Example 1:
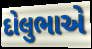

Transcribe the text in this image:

દોલુભાએ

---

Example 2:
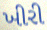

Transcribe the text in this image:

ખીરી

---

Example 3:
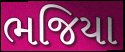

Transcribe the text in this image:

ભજિયા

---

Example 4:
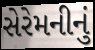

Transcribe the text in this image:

સેરેમનીનું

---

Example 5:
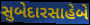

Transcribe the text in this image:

સુબેદારસાહેબે